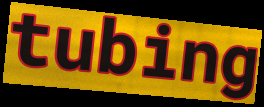
tubing